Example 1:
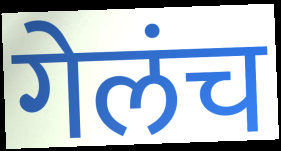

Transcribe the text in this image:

गेलंच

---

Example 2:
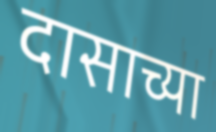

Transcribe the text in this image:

दासाच्या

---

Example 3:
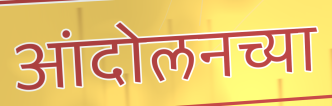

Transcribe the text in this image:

आंदोलनच्या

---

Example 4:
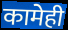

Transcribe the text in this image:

कामेही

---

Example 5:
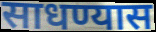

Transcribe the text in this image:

साधण्यास